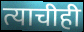
त्याचीही